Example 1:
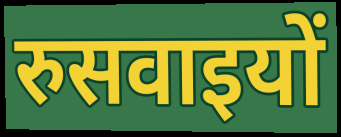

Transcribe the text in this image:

रुसवाइयों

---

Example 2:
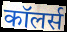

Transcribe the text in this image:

कॉलर्स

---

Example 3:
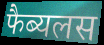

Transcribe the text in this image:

फैब्यलस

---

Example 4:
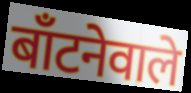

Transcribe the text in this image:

बाँटनेवाले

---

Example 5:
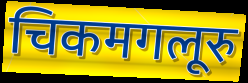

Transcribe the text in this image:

चिकमगलूरु